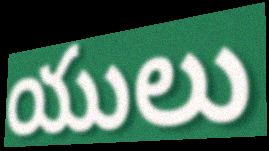
యులు